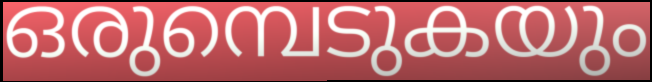
ഒരുമ്പെടുകയും